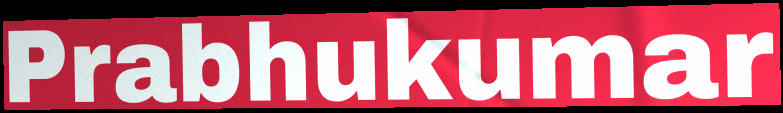
Prabhukumar